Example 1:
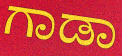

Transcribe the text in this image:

ಗಾಡಾ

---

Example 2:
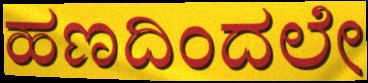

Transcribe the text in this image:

ಹಣದಿಂದಲೇ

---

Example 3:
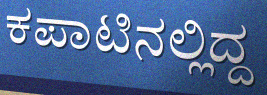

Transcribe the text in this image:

ಕಪಾಟಿನಲ್ಲಿದ್ದ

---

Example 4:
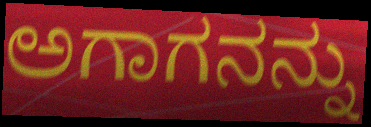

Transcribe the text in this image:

ಅಗಾಗನನ್ನು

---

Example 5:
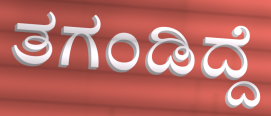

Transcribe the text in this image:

ತಗಂಡಿದ್ದೆ